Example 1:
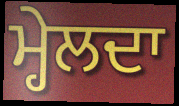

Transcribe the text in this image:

ਮ੍ਹੇਲਦਾ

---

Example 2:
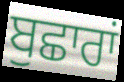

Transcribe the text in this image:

ਬੁਛਾਰਾਂ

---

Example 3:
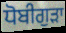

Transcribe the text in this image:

ਧੋਬੀਗੁੜਾ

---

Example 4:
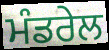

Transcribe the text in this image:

ਮੰਡਰੇਲ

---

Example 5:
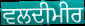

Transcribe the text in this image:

ਵਲਦੀਮੀਰ